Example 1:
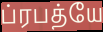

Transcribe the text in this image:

ப்ரபத்யே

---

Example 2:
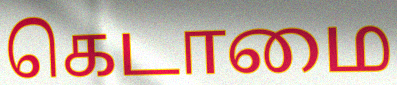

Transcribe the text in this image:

கெடாமை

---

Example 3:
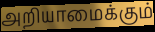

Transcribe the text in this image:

அறியாமைக்கும்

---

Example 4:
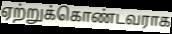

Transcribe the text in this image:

ஏற்றுக்கொண்டவராக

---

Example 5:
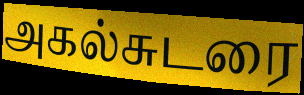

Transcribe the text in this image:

அகல்சுடரை